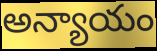
అన్యాయం